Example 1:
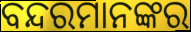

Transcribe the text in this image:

ବନ୍ଦରମାନଙ୍କର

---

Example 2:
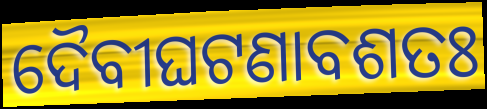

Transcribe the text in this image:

ଦୈବୀଘଟଣାବଶତଃ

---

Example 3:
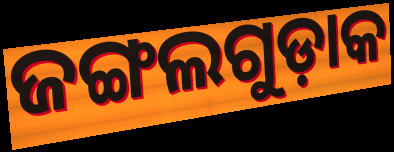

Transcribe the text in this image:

ଜଙ୍ଗଲଗୁଡ଼ାକ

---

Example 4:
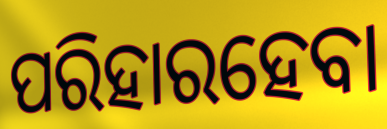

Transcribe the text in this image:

ପରିହାରହେବା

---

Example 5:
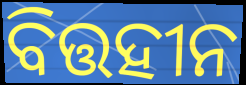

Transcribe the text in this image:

ବିତ୍ତହୀନ